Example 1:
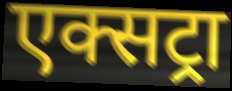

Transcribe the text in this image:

एक्सट्रा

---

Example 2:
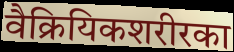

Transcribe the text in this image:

वैक्रियिकशरीरका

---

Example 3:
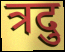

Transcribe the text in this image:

त्रदु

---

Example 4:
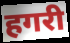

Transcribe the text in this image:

हगरी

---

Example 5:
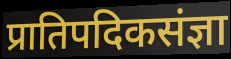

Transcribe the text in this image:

प्रातिपदिकसंज्ञा